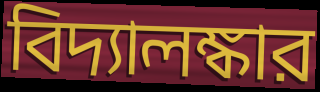
বিদ্যালঙ্কার